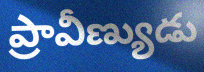
ప్రావీణ్యుడు